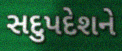
સદુપદેશને